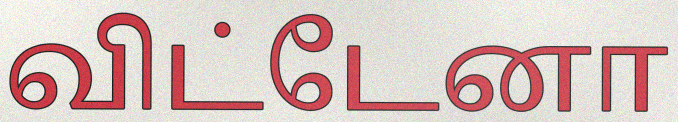
விட்டேனா